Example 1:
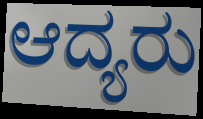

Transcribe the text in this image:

ಆದ್ಯರು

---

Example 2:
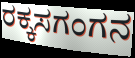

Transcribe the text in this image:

ರಕ್ಕಸಗಂಗನ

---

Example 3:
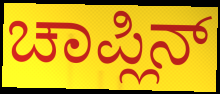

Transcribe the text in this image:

ಚಾಪ್ಲಿನ್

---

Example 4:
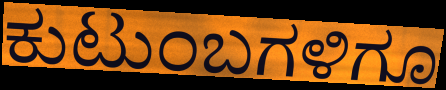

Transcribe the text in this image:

ಕುಟುಂಬಗಳಿಗೂ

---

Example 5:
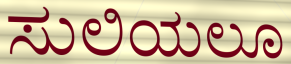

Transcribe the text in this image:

ಸುಲಿಯಲೂ